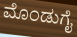
ಮೊಂಡುಗೈ